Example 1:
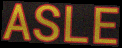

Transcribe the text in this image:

ASLE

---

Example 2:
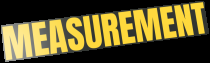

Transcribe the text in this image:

MEASUREMENT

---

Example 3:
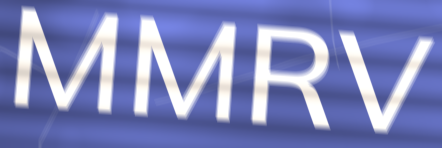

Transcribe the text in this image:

MMRV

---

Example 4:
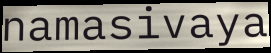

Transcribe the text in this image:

namasivaya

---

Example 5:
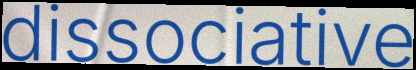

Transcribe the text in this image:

dissociative